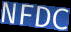
NFDC